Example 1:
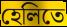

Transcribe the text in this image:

হেলিতে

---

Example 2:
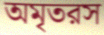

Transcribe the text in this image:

অমৃতরস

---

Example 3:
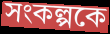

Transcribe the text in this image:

সংকল্পকে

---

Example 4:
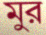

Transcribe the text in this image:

মুর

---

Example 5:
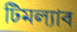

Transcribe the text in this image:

টিমল্যাব